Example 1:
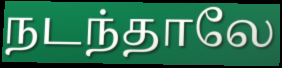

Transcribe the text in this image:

நடந்தாலே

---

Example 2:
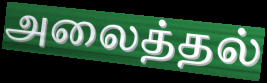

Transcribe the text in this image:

அலைத்தல்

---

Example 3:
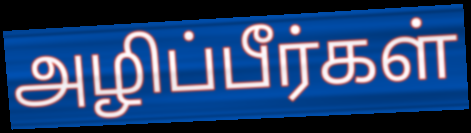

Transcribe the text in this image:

அழிப்பீர்கள்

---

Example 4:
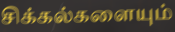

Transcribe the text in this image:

சிக்கல்களையும்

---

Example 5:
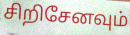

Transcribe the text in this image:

சிறிசேனவும்